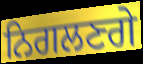
ਨਿਗਲਣਗੇ